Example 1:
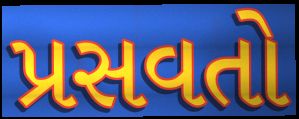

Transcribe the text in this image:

પ્રસવતો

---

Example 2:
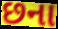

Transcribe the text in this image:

છના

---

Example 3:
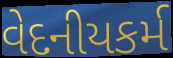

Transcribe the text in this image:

વેદનીયકર્મ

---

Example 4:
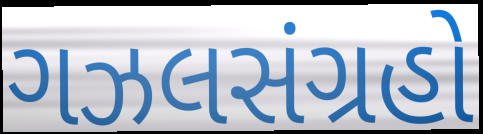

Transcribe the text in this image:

ગઝલસંગ્રહો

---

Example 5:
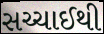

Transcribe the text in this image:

સચ્ચાઈથી